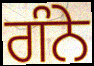
ਗੰਨੇ